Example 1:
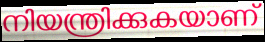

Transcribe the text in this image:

നിയന്ത്രിക്കുകയാണ്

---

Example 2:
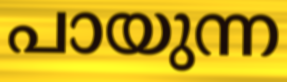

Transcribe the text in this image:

പായുന്ന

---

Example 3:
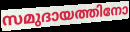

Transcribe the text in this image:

സമുദായത്തിനോ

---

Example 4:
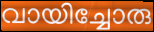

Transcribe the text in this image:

വായിച്ചോരു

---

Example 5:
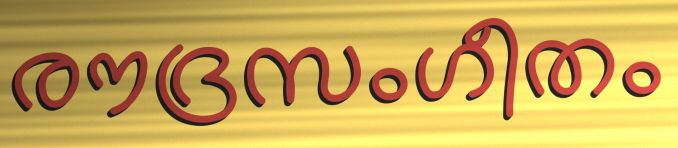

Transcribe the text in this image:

രൗദ്രസംഗീതം